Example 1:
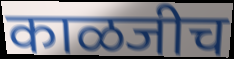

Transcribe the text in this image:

काळजीच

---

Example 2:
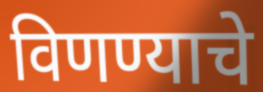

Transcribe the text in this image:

विणण्याचे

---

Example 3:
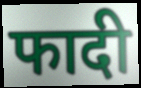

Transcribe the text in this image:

फादी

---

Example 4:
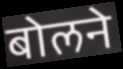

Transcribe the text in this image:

बोलने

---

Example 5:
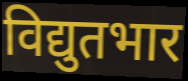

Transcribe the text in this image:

विद्युतभार